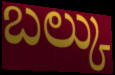
బల్కు